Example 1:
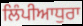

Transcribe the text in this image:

ਲਿੰਪੀਆਧੁਰਾ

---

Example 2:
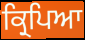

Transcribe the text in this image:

ਕ੍ਰਿਪਿਆ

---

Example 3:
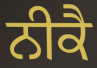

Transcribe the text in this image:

ਨੀਕੈ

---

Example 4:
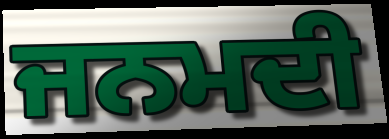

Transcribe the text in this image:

ਜਨਮਦੀ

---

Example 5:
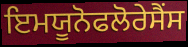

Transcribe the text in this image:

ਇਮਯੂਨੋਫਲੋਰੇਸੈਂਸ